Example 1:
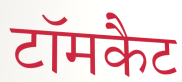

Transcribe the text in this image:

टॉमकैट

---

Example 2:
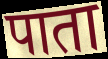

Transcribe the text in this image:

पाता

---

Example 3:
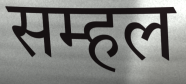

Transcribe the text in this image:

सम्हल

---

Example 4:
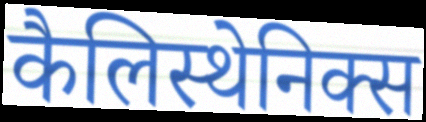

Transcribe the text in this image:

कैलिस्थेनिक्स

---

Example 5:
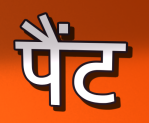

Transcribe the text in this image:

पैंट